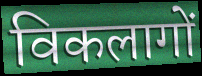
विकलागों